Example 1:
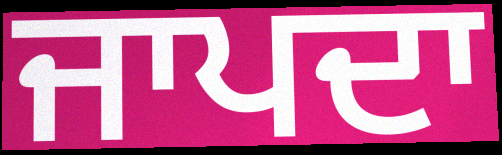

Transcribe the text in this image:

ਜਾਪਦਾ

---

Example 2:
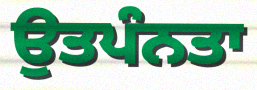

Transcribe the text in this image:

ਉਤਪੰਨਤਾ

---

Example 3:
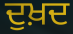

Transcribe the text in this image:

ਦੁਖ਼ਦ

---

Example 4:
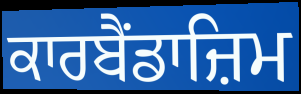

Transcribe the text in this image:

ਕਾਰਬੈਂਡਾਜ਼ਿਮ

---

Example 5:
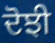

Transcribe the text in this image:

ਦੋਝੀ